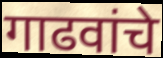
गाढवांचे